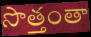
సొత్తంతా